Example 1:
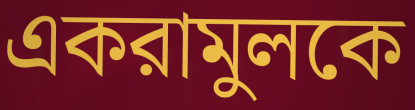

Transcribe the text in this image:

একরামুলকে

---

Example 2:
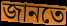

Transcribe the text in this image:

জানতে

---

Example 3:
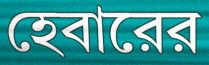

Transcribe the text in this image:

হেবারের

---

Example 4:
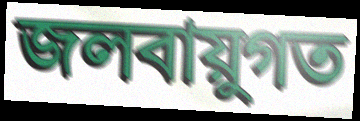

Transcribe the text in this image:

জলবায়ুগত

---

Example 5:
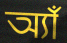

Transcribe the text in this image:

অ্যাঁ